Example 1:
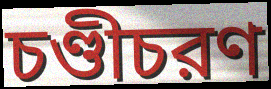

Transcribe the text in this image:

চণ্ডীচরণ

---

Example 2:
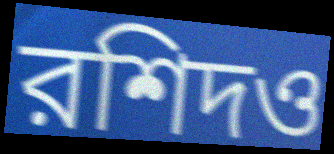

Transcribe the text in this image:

রশিদও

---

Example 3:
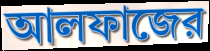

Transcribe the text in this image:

আলফাজের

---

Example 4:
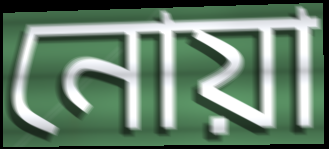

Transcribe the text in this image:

নোয়া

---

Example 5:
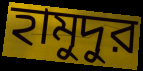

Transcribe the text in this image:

হামুদুর